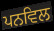
ਪਨਵਿਲ